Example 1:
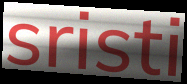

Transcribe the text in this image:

sristi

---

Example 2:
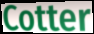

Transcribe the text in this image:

Cotter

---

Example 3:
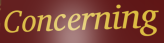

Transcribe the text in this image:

Concerning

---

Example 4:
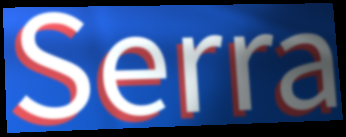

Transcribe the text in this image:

Serra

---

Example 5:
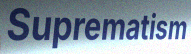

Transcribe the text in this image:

Suprematism